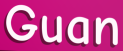
Guan